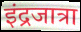
इंद्रजात्रा